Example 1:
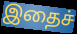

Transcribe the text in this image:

இதைச்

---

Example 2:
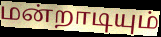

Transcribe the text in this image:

மன்றாடியும்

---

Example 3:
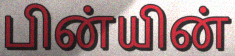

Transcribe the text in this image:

பின்யின்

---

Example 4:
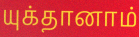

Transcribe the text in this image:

யுக்தானாம்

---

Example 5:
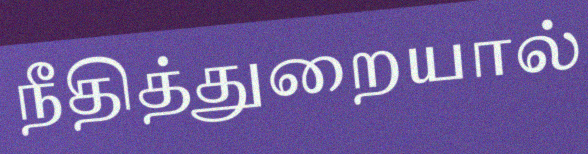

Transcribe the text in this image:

நீதித்துறையால்